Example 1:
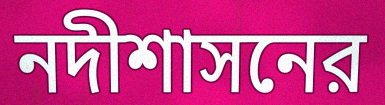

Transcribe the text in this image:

নদীশাসনের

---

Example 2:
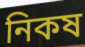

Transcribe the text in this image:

নিকষ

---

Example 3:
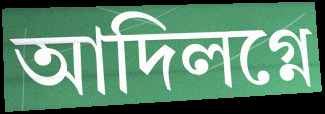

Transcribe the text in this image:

আদিলগ্নে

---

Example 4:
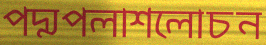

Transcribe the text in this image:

পদ্মপলাশলোচন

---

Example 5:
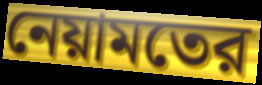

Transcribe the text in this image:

নেয়ামতের